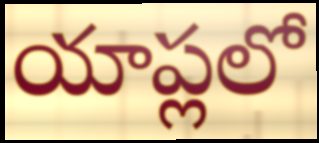
యాప్లలో